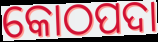
କୋଠପଦା